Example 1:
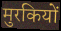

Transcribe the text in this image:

मुरकियों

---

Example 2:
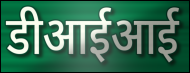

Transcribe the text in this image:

डीआईआई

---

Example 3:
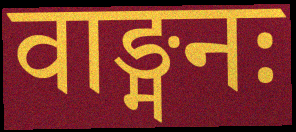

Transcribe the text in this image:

वाङ्मनः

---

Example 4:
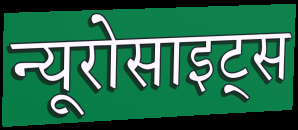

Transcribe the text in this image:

न्यूरोसाइट्स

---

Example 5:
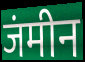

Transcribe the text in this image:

जंमीन